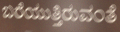
ಬರೆಯುತ್ತಿರುವಂತೆ